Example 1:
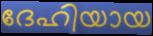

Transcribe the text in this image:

ദേഹിയായ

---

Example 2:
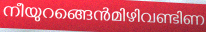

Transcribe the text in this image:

നീയുറങ്ങെൻമിഴിവണ്ടിണ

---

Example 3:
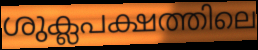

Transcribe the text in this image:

ശുക്ലപക്ഷത്തിലെ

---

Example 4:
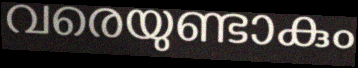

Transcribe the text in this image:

വരെയുണ്ടാകും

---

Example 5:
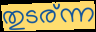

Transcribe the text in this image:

തുടര്ന്ന